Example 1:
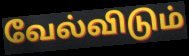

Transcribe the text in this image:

வேல்விடும்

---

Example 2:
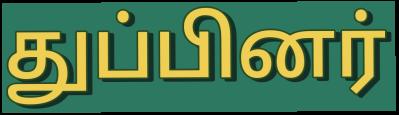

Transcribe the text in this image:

துப்பினர்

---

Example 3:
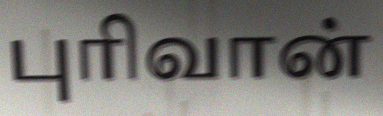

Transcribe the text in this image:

புரிவான்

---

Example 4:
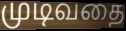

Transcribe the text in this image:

முடிவதை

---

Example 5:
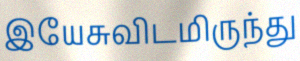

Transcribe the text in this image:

இயேசுவிடமிருந்து